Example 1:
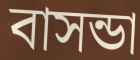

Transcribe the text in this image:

বাসন্ডা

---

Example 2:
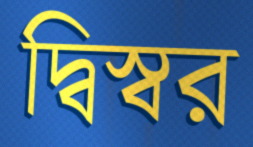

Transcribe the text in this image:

দ্বিস্বর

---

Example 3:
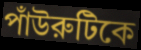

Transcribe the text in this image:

পাঁউরুটিকে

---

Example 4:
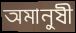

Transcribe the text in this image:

অমানুষী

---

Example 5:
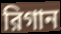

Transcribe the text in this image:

রিগান